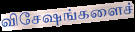
விசேஷங்களைச்